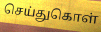
செய்துகொள்